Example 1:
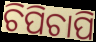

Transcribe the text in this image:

ଚିପିଚାପି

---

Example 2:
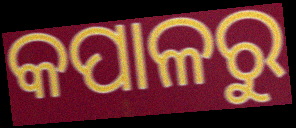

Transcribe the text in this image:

କପାଳରୁ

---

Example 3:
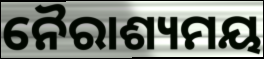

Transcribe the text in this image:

ନୈରାଶ୍ୟମୟ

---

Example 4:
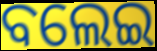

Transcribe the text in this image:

ବଲେଇ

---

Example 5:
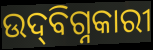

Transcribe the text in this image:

ଉଦ୍‌ବିଗ୍ନକାରୀ